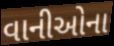
વાનીઓના